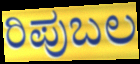
ರಿಪುಬಲ